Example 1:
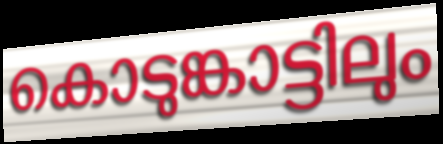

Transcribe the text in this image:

കൊടുങ്കാട്ടിലും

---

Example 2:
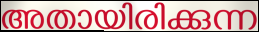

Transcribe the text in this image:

അതായിരിക്കുന്ന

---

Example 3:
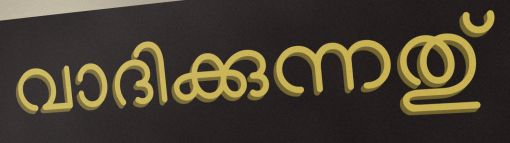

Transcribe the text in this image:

വാദിക്കുന്നതു്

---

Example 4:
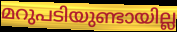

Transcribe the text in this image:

മറുപടിയുണ്ടായില്ല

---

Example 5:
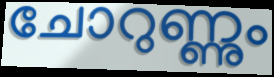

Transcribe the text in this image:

ചോറുണ്ണും